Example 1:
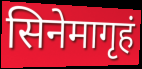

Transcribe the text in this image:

सिनेमागृहं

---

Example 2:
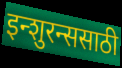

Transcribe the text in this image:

इन्शुरन्ससाठी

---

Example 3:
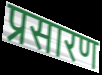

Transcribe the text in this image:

प्रसारण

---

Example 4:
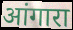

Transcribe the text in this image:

आंगारा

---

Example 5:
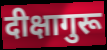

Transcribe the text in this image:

दीक्षागुरू